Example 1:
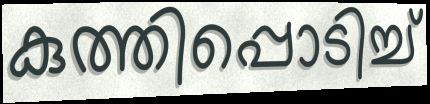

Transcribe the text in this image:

കുത്തിപ്പൊടിച്ച്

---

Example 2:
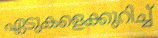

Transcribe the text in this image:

ഏടുകളെക്കുറിച്ച്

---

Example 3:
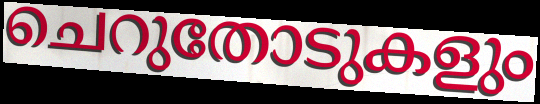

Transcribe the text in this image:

ചെറുതോടുകളും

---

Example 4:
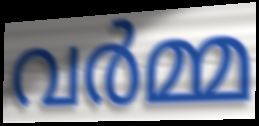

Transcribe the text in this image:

വർമ്മ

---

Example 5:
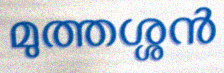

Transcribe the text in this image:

മുത്തശ്ശൻ